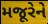
મજૂરેને